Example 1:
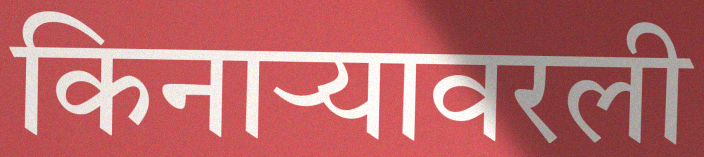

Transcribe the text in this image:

किनाऱ्यावरली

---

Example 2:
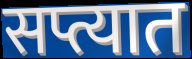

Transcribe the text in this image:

सप्त्यात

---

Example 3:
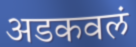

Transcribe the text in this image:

अडकवलं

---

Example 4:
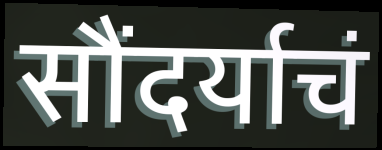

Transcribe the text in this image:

सौंदर्याचं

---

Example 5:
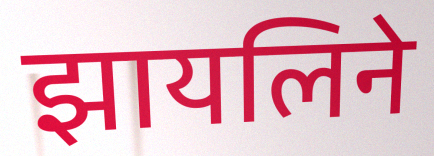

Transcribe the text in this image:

झायलिने